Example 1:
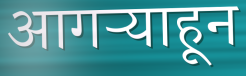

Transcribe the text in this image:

आगऱ्याहून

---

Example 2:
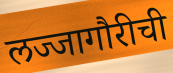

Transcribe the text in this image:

लज्जागौरीची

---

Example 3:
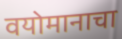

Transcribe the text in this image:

वयोमानाचा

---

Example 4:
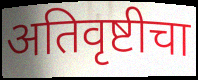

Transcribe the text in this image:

अतिवृष्टीचा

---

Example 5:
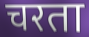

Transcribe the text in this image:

चरता